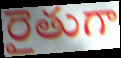
రైతుగా